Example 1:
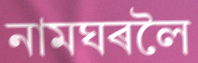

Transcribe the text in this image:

নামঘৰলৈ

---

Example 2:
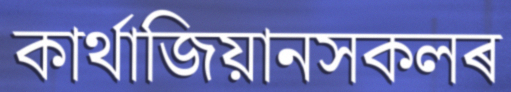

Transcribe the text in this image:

কাৰ্থাজিয়ানসকলৰ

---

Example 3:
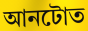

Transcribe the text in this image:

আনটোত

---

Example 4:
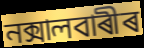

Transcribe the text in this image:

নক্সালবাৰীৰ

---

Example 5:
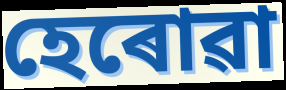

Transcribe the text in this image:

হেৰোৱা